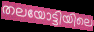
തലയോട്ടിയിലെ